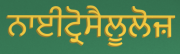
ਨਾਈਟ੍ਰੋਸੈਲੂਲੋਜ਼